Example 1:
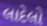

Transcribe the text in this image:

લાદેલો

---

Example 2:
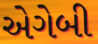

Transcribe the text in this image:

એગેબી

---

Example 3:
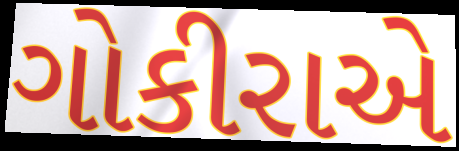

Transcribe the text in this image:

ગોકીરાએ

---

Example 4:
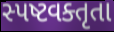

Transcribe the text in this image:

સ્પષ્ટવક્તૃતા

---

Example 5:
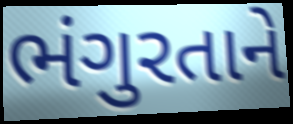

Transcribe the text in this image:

ભંગુરતાને